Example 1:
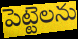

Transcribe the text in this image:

పెట్టెలను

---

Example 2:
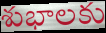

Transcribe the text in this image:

శుభాలకు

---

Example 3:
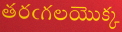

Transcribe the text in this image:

తరఁగలయొక్క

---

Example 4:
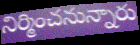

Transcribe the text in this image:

నిర్మించనున్నారు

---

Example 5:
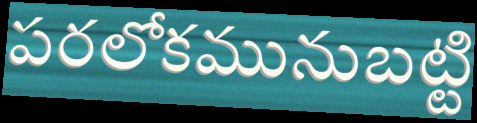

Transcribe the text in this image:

పరలోకమునుబట్టి